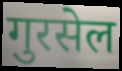
गुरसेल